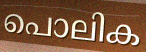
പൊലിക